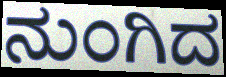
ನುಂಗಿದ